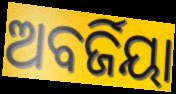
ଅବର୍ଜିୟା